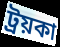
ট্রয়কা